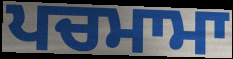
ਪਚਮਾਮਾ